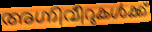
അഗ്നിവീറുകൾക്ക്